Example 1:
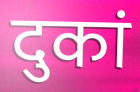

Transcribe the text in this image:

दुकां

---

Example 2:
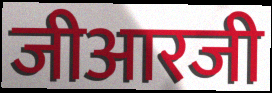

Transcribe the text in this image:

जीआरजी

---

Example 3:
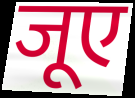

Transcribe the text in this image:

जूए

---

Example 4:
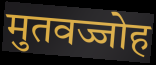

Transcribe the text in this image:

मुतवज्जोह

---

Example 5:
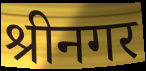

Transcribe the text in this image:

श्रीनगर